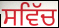
ਸਵਿੱਚ